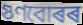
গুণবোৰৰ